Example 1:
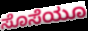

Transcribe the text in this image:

ಸೊಸೆಯೂ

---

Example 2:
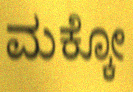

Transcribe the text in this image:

ಮಕ್ಕೋ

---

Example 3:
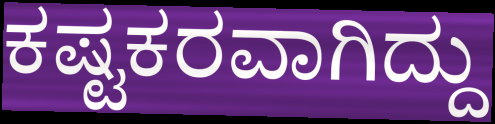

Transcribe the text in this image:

ಕಷ್ಟಕರವಾಗಿದ್ದು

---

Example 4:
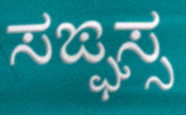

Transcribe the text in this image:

ಸಙ್ಘಸ್ಸ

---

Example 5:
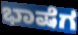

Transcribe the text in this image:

ಭಾಷೆಗ